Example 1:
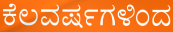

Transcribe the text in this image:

ಕೆಲವರ್ಷಗಳಿಂದ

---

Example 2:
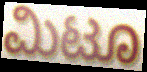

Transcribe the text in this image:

ಮಿಟೂ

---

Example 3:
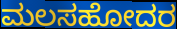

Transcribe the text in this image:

ಮಲಸಹೋದರ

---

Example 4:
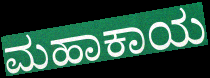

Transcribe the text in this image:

ಮಹಾಕಾಯ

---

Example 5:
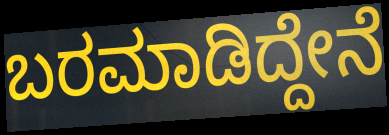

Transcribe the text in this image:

ಬರಮಾಡಿದ್ದೇನೆ